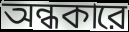
অন্ধকারে